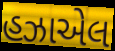
હઝાએલ